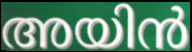
അയിൻ